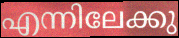
എന്നിലേക്കു